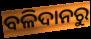
ବଳିଦାନରୁ